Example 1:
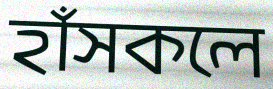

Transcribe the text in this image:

হাঁসকলে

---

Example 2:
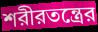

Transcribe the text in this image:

শরীরতন্ত্রের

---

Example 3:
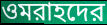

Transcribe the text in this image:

ওমরাহদের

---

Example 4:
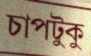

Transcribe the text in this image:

চাপটুকু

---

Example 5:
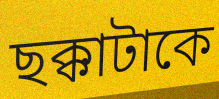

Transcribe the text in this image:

ছক্কাটাকে